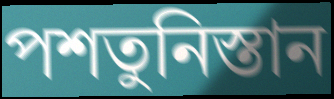
পশতুনিস্তান